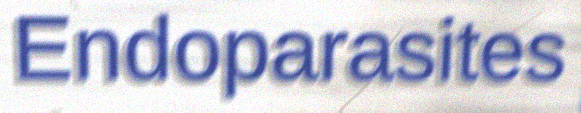
Endoparasites